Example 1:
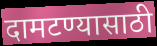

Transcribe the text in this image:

दामटण्यासाठी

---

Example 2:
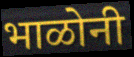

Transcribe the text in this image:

भाळोनी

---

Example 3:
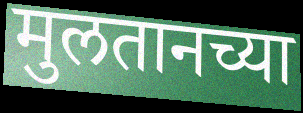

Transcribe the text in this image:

मुलतानच्या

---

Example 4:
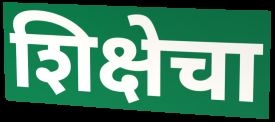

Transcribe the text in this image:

शिक्षेचा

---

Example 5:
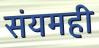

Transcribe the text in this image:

संयमही